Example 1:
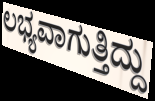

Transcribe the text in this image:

ಲಭ್ಯವಾಗುತ್ತಿದ್ದು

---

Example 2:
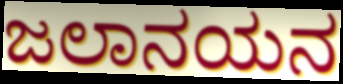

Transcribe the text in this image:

ಜಲಾನಯನ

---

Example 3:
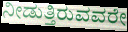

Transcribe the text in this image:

ನೀಡುತ್ತಿರುವವರೇ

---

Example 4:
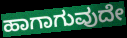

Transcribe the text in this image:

ಹಾಗಾಗುವುದೇ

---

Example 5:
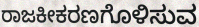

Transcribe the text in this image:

ರಾಜಕೀಕರಣಗೊಳಿಸುವ